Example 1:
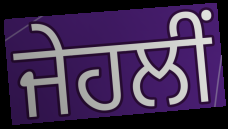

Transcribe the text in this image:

ਜੇਹਲੀਂ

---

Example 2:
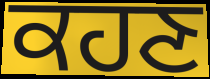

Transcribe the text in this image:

ਕਹਣ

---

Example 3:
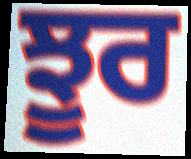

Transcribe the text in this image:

ਝੂਰ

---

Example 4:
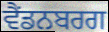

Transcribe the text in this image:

ਵੈਂਡਨਬਰਗ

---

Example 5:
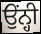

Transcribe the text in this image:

ਉਂਨ੍ਹੀ